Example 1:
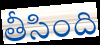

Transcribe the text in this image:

తీసింది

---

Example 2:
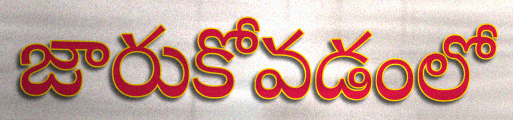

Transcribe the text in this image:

జారుకోవడంలో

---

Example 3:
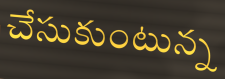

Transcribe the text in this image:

చేసుకుంటున్న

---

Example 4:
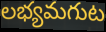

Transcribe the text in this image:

లభ్యమగుట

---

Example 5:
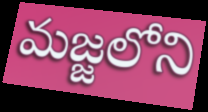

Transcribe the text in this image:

మజ్జలోని